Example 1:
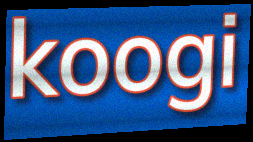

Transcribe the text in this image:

koogi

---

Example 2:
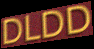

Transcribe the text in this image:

DLDD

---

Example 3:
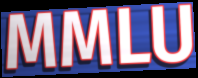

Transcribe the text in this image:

MMLU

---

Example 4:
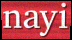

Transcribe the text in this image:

nayi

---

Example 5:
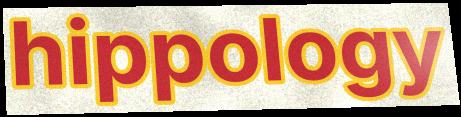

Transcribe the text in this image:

hippology